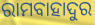
ରାମବାହାଦୁର